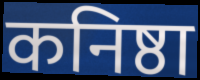
कनिष्ठा